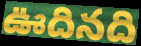
ఊదినది